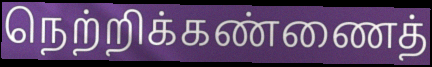
நெற்றிக்கண்ணைத்